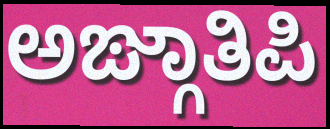
ಅಙ್ಗಾತಿಪಿ